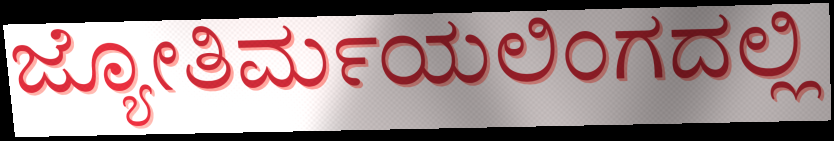
ಜ್ಯೋತಿರ್ಮಯಲಿಂಗದಲ್ಲಿ